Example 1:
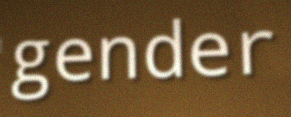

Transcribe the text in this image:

gender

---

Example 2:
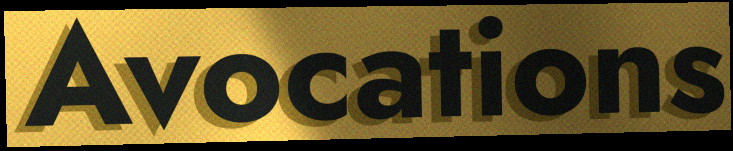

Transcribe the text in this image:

Avocations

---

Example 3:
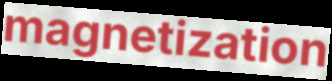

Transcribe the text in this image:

magnetization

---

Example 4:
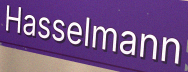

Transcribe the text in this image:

Hasselmann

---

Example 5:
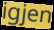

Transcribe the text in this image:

igjen